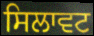
ਸਿਲਾਵਟ